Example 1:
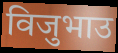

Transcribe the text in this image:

विजुभाउ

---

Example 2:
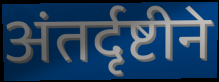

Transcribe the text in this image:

अंतर्दृष्टीने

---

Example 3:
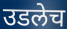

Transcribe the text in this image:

उडलेच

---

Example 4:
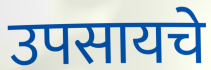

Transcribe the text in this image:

उपसायचे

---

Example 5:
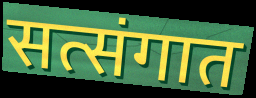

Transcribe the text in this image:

सत्संगात